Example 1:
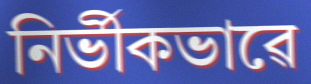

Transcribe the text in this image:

নিৰ্ভীকভাৱে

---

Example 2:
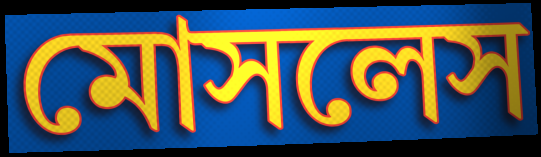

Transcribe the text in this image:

মোসলেস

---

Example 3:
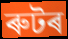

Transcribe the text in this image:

ৰুটৰ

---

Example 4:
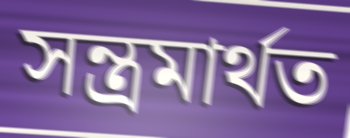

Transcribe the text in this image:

সন্ত্ৰমাৰ্থত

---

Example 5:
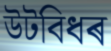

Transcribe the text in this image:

উটবিধৰ